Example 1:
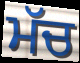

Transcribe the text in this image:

ਮੱਚ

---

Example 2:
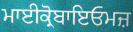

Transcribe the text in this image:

ਮਾਈਕ੍ਰੋਬਾਇਓਮਜ਼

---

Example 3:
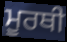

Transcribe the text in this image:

ਮੂਰਥੀ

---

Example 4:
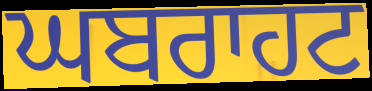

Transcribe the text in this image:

ਘਬਰਾਹਟ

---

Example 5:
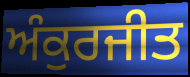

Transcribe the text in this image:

ਅੰਕੁਰਜੀਤ